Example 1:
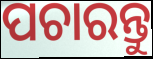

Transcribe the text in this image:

ପଚାରନ୍ତୁ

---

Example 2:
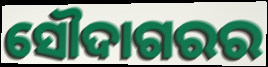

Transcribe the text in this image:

ସୌଦାଗରର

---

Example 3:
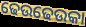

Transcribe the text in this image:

ଢେଉଢେଉକା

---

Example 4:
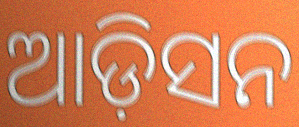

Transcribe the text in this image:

ଆଡ଼ିସନ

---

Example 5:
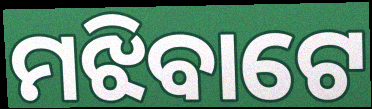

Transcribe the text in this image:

ମଝିବାଟେ